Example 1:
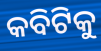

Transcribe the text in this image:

କବିଟିକୁ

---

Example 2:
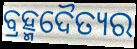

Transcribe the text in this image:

ବ୍ରହ୍ମଦୈତ୍ୟର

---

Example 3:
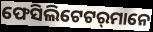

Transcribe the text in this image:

ଫେସିଲିଟେଟର୍‌ମାନେ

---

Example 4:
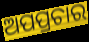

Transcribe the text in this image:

ଅପପ୍ରଚାର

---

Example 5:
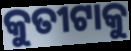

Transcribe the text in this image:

କୁତୀଟାକୁ